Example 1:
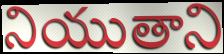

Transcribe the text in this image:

నియుతాని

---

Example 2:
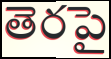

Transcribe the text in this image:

తెరపై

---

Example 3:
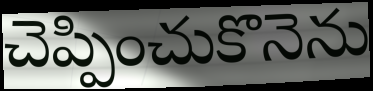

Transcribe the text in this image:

చెప్పించుకొనెను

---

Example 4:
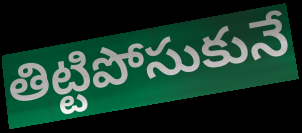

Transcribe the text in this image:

తిట్టిపోసుకునే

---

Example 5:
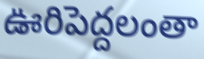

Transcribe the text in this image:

ఊరిపెద్దలంతా